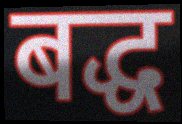
बद्ध